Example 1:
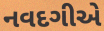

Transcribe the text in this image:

નવદગીએ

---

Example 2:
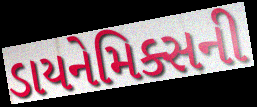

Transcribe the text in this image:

ડાયનેમિક્સની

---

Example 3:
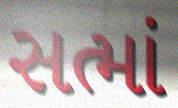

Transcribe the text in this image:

સત્માં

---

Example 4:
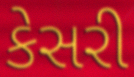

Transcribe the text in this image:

કેસરી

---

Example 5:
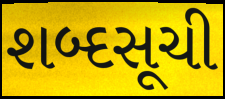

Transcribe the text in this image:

શબ્દસૂચી